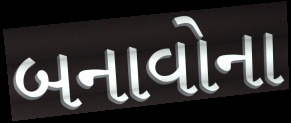
બનાવોના